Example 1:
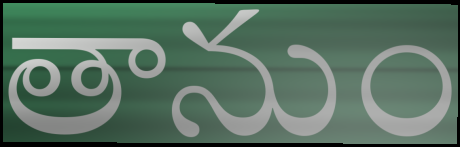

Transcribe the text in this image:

తానుం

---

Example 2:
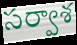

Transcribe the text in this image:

సర్వాశ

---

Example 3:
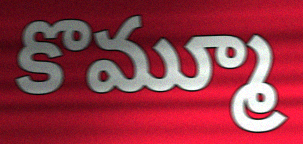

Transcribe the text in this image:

కొమ్మూ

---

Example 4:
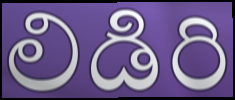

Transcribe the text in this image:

లిడిరి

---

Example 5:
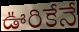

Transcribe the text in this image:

ఊరికేనే